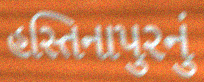
હસ્તિનાપુરનું